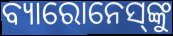
ବ୍ୟାରୋନେସ୍‌ଙ୍କୁ